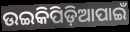
ଉଇକିପିଡ଼ିଆପାଇଁ